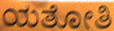
ಯತೋತಿ